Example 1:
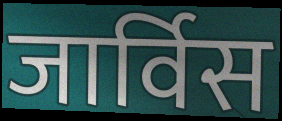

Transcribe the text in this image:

जार्विस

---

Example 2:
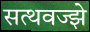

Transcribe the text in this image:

सत्थवज्झे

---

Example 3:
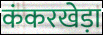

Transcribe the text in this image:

कंकरखेड़ा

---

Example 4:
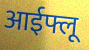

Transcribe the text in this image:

आईफ्लू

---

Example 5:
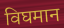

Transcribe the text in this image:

विघमान